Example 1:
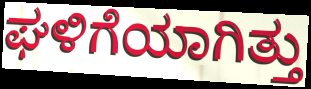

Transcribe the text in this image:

ಘಳಿಗೆಯಾಗಿತ್ತು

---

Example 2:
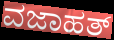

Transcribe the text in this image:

ವಜಾಹತ್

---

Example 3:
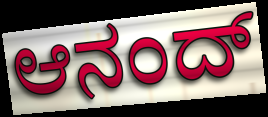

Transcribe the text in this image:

ಆನಂದ್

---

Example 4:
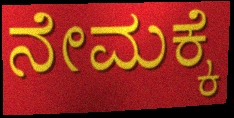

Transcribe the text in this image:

ನೇಮಕ್ಕೆ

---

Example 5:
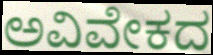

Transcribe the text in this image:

ಅವಿವೇಕದ